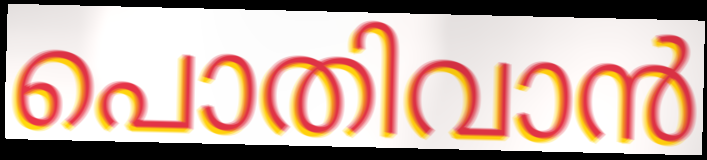
പൊതിവാൻ